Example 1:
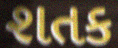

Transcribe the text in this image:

શતક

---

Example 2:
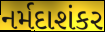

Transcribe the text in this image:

નર્મદાશંકર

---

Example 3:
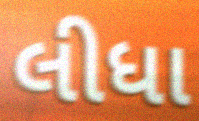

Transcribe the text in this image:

લીધા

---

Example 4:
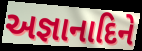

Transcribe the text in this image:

અજ્ઞાનાદિને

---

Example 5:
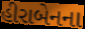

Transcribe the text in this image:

હીરાબેનના